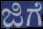
ಜಿಗೆ